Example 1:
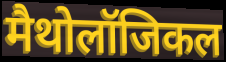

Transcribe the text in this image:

मैथोलॉजिकल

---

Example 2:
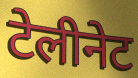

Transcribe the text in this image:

टेलीनेट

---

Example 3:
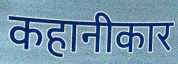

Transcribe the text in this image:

कहानीकार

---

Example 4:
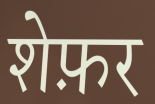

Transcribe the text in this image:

शेफ़र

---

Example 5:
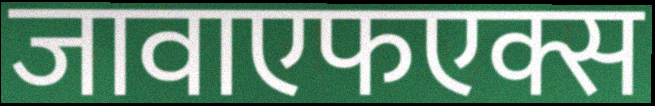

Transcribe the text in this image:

जावाएफएक्स